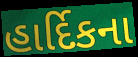
હાર્દિકના